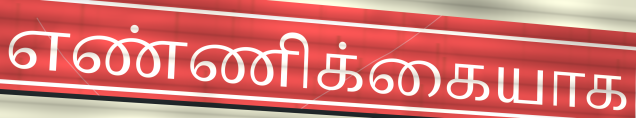
எண்ணிக்கையாக